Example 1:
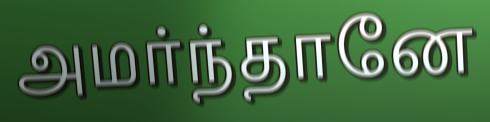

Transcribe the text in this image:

அமர்ந்தானே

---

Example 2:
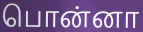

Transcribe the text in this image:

பொன்னா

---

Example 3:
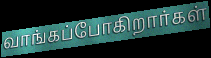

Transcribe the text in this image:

வாங்கப்போகிறார்கள்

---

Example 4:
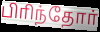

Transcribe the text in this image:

பிரிந்தோர்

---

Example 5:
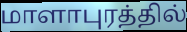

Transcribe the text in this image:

மாளாபுரத்தில்